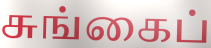
சுங்கைப்